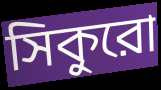
সিকুরো